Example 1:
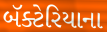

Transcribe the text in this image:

બૅક્ટેરિયાના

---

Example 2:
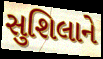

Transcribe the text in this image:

સુશિલાને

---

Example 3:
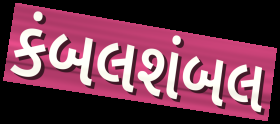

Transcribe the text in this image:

કંબલશંબલ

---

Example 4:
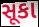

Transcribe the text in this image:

સૂકા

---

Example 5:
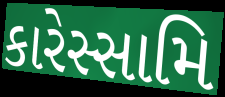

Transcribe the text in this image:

કારેસ્સામિ